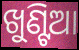
ଖୁଣ୍ଟିଆ